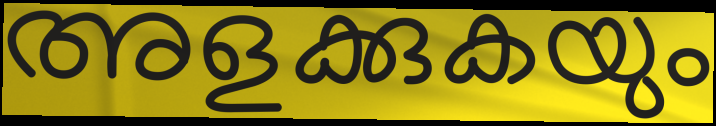
അളക്കുകയും